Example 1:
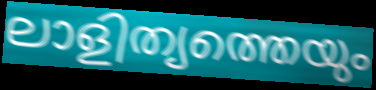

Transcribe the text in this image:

ലാളിത്യത്തെയും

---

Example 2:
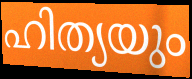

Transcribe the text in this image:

ഹിത്യയും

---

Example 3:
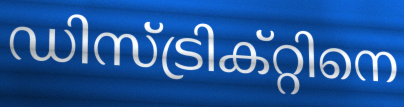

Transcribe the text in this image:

ഡിസ്ട്രിക്റ്റിനെ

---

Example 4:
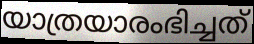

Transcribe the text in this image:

യാത്രയാരംഭിച്ചത്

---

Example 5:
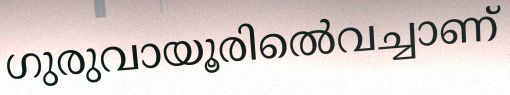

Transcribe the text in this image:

ഗുരുവായൂരിൽെവച്ചാണ്